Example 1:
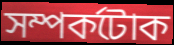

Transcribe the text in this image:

সম্পৰ্কটোক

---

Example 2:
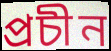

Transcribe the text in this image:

প্ৰচীন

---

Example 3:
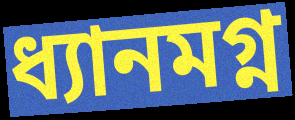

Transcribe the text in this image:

ধ্যানমগ্ন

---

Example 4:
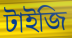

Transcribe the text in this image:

টাইজি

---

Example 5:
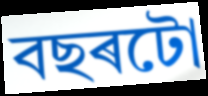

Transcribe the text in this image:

বছৰটো